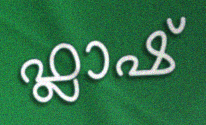
ഫ്ലാഷ്